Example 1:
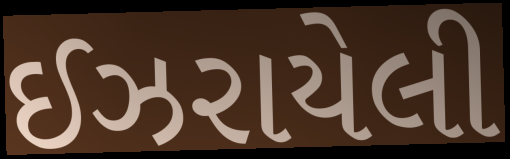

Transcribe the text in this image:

ઈઝરાયેલી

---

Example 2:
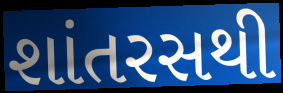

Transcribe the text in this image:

શાંતરસથી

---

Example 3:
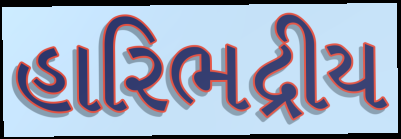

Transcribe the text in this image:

હારિભદ્રીય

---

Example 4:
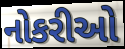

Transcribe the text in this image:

નોકરીઓ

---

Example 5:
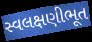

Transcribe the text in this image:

સ્વલક્ષણીભૂત